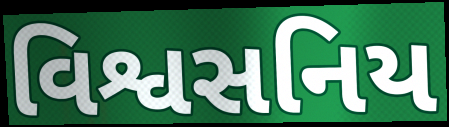
વિશ્વસનિય